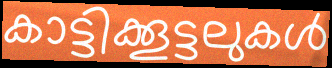
കാട്ടിക്കൂട്ടലുകൾ